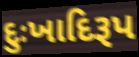
દુઃખાદિરૂપ